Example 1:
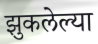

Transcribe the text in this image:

झुकलेल्या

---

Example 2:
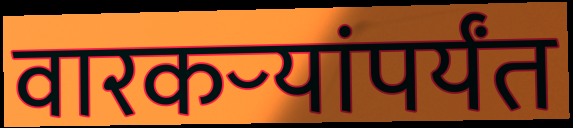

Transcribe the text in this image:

वारकऱ्यांपर्यंत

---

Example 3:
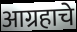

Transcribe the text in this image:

आग्रहाचे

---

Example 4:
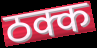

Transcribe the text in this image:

ठक्क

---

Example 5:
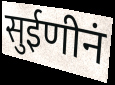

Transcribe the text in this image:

सुईणीनं